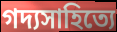
গদ্যসাহিত্যে